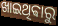
ଖାଇଥିଵାରୁ